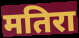
मतिरा